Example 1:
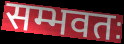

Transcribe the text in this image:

सम्भवतः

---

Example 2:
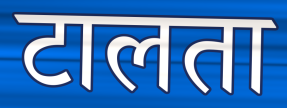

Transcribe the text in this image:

टालता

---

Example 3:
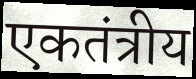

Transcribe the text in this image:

एकतंत्रीय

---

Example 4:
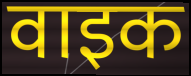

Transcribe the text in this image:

वाइक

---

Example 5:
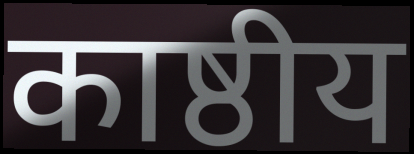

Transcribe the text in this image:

काष्ठीय